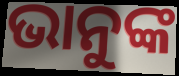
ଭାନୁଙ୍କ